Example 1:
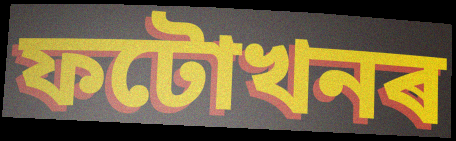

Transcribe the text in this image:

ফটোখনৰ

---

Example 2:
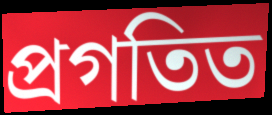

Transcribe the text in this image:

প্ৰগতিত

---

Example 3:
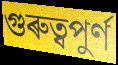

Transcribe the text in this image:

গুৰুত্বপুৰ্ণ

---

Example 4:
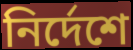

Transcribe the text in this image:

নিৰ্দেশে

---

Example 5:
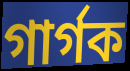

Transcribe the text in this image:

গাৰ্গক